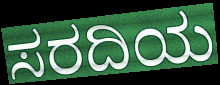
ಸರದಿಯ